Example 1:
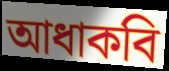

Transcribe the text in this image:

আধাকবি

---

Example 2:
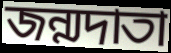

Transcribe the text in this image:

জন্মদাতা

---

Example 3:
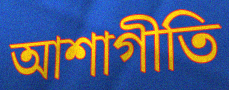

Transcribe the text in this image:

আশাগীতি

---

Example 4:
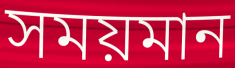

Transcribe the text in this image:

সময়মান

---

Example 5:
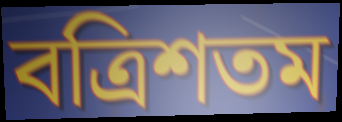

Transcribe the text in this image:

বত্রিশতম